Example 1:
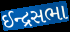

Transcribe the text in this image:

ઈન્દ્રસભા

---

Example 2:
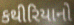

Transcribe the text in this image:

કથીરિયાનો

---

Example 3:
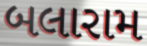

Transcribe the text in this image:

બલારામ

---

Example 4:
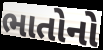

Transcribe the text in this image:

ભાતોનો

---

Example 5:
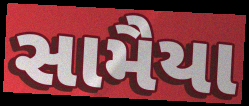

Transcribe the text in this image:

સામૈયા